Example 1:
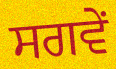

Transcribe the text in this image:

ਸਗਵੇਂ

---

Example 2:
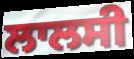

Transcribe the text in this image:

ਲਾਲਸੀ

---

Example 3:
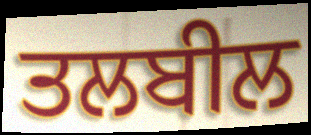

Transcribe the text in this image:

ਤਲਬੀਲ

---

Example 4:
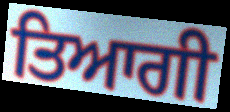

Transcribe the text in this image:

ਤਿਆਗੀ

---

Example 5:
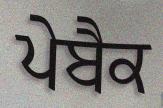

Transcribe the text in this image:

ਪੇਬੈਕ